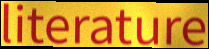
literature